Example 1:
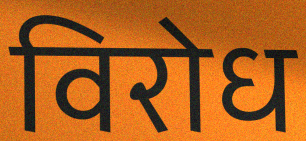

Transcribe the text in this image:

विरोध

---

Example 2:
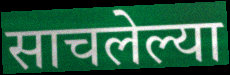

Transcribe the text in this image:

साचलेल्या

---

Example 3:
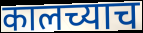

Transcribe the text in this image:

कालच्याच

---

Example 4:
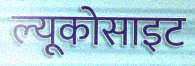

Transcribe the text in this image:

ल्यूकोसाइट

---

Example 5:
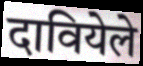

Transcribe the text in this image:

दावियेले